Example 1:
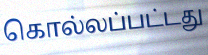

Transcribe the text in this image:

கொல்லப்பட்டது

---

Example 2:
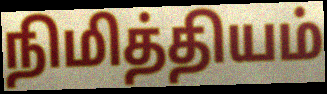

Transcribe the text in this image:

நிமித்தியம்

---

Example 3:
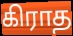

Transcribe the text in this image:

கிராத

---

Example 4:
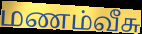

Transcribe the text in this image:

மணம்வீசு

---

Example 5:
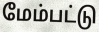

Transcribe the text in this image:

மேம்பட்டு